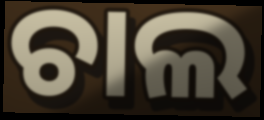
ଚାଲ